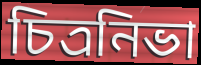
চিত্রনিভা